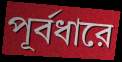
পূর্বধারে